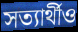
সত্যার্থীও